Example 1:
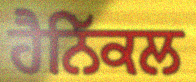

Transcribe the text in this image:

ਹੈਨਿੱਕਲ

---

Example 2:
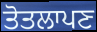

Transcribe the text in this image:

ਤੋਤਲਾਪਣ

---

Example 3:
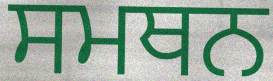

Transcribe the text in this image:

ਸਮਥਨ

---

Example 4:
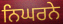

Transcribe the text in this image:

ਨਿਘਰਨੇ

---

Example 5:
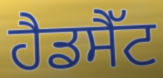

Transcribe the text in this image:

ਹੈਡਸੈੱਟ